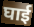
घाई